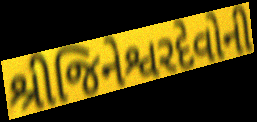
શ્રીજિનેશ્વરદેવોની